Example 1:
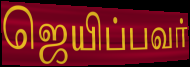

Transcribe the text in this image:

ஜெயிப்பவர்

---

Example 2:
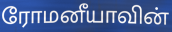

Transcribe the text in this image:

ரோமனீயாவின்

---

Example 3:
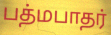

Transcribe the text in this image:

பத்மபாதர்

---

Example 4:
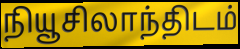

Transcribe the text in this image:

நியூசிலாந்திடம்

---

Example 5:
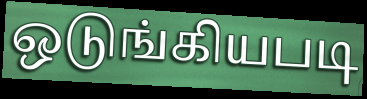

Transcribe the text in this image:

ஒடுங்கியபடி